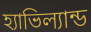
হ্যাভিল্যান্ড